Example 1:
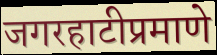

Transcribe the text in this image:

जगरहाटीप्रमाणे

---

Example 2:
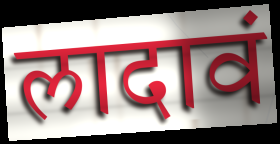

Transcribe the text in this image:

लादावं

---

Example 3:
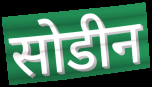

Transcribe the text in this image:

सोडीन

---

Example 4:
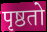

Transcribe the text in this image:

पृष्ठतो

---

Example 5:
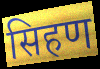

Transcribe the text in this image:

सिहण